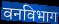
वनविभाग